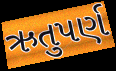
ઋતુપર્ણ